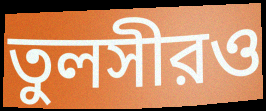
তুলসীরও